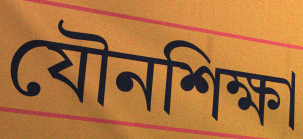
যৌনশিক্ষা